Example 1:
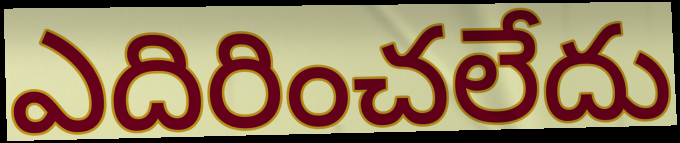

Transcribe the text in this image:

ఎదిరించలేదు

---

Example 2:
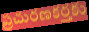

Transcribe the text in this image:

ప్రచురణకర్తకు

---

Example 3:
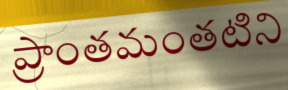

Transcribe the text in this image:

ప్రాంతమంతటిని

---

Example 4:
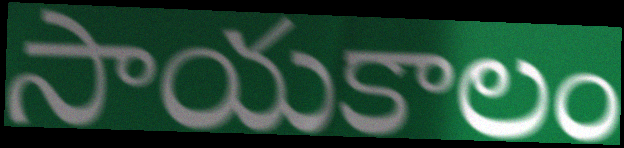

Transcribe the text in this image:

సాయకాలం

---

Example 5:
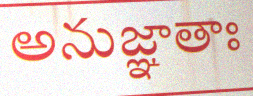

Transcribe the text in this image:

అనుజ్ఞాతాః